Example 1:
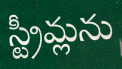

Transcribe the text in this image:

స్ట్రీమ్లను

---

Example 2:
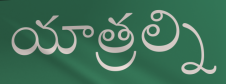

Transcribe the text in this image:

యాత్రల్ని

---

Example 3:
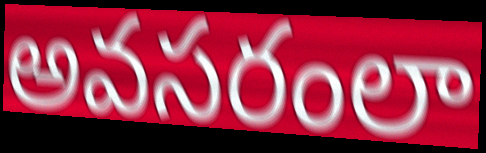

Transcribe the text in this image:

అవసరంలా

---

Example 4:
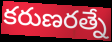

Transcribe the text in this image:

కరుణరత్నే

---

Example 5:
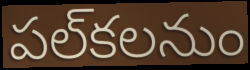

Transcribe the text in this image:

పల్‌కలనుం